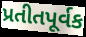
પ્રતીતપૂર્વક